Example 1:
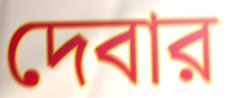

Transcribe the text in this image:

দেবার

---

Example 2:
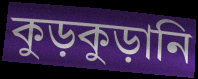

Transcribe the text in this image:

কুড়কুড়ানি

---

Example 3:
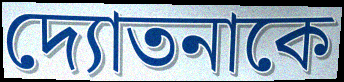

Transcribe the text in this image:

দ্যোতনাকে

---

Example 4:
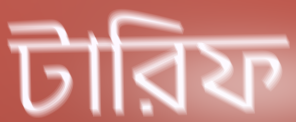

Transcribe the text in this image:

টারিফ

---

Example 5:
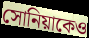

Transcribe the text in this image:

সোনিয়াকেও